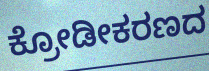
ಕ್ರೋಡೀಕರಣದ